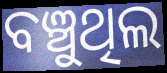
ବଞ୍ଚୁଥିଲ